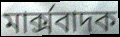
মাৰ্ক্সবাদক